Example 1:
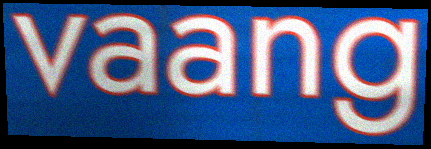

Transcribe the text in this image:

vaang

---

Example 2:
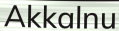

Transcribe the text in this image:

Akkalnu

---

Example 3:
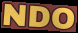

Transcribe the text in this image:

NDO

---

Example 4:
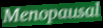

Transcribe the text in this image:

Menopausal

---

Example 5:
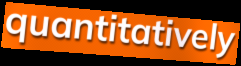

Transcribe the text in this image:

quantitatively